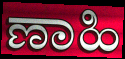
ಣಾಹಿ